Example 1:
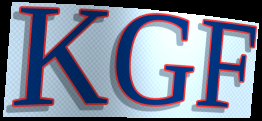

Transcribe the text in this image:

KGF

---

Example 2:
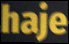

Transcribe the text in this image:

haje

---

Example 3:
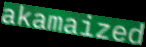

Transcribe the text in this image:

akamaized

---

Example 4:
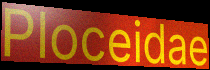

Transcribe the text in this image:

Ploceidae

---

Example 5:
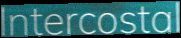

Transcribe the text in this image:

Intercostal